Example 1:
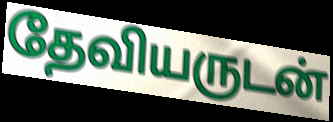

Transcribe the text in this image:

தேவியருடன்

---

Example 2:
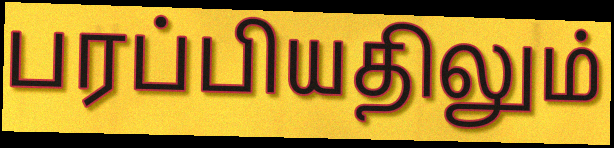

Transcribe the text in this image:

பரப்பியதிலும்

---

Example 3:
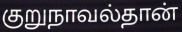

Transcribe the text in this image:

குறுநாவல்தான்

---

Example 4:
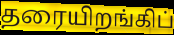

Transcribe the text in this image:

தரையிறங்கிப்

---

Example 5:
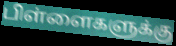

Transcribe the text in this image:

பிள்ளைகளுக்கு